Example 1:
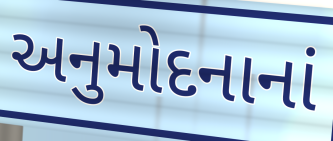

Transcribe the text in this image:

અનુમોદનાનાં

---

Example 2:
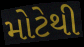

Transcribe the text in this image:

મોટેથી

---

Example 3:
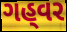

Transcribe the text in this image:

ગહ્‌વર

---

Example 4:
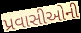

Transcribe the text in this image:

પ્રવાસીઓની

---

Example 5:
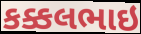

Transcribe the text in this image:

કક્કલભાઇ